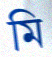
মি